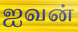
ஐவன்